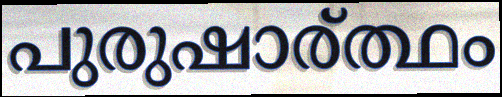
പുരുഷാര്ത്ഥം